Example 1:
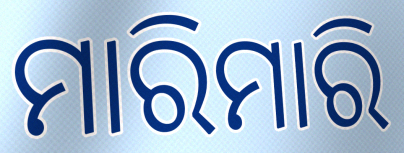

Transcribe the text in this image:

ମାରିମାରି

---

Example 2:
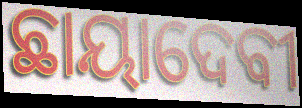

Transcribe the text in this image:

ଛାୟାଦେବୀ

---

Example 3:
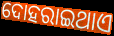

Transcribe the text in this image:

ଦୋହରାଇଥାଏ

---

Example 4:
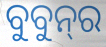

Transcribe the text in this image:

ବୁବୁନ୍‌ର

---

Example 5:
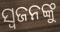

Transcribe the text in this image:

ସ୍ଵଜନଙ୍କୁ